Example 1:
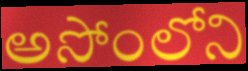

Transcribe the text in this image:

అసోంలోని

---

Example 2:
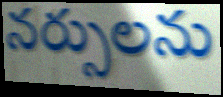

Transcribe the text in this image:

నర్సులను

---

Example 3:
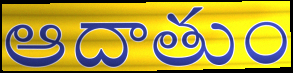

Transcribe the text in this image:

ఆదాతుం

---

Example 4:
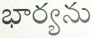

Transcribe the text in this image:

భార్యను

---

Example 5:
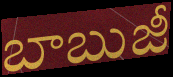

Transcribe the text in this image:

బాబుజీ